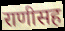
राणीसह